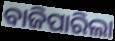
ବାଜିପାରିଲା